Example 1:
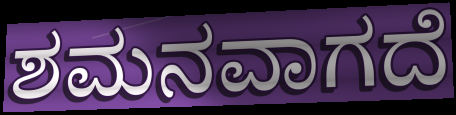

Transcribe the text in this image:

ಶಮನವಾಗದೆ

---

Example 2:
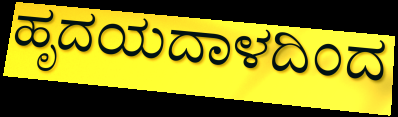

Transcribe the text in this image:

ಹೃದಯದಾಳದಿಂದ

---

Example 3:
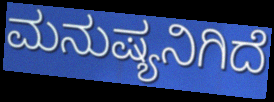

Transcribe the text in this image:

ಮನುಷ್ಯನಿಗಿದೆ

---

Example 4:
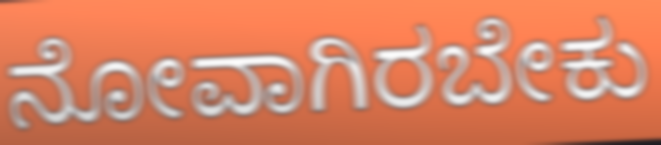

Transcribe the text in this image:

ನೋವಾಗಿರಬೇಕು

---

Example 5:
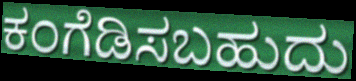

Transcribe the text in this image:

ಕಂಗೆಡಿಸಬಹುದು